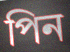
পিন